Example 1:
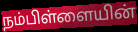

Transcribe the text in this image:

நம்பிள்ளையின்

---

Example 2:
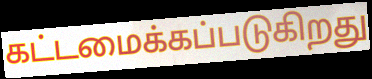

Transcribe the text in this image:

கட்டமைக்கப்படுகிறது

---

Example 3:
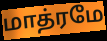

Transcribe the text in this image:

மாத்ரமே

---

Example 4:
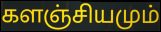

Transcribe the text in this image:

களஞ்சியமும்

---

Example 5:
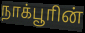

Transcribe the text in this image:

நாக்பூரின்